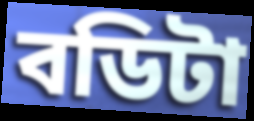
বডিটা